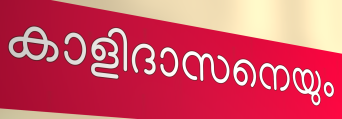
കാളിദാസനെയും